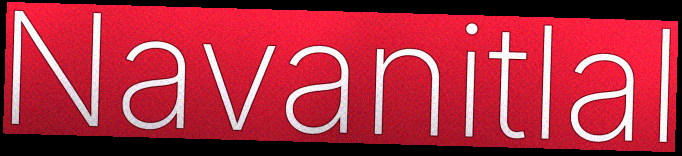
Navanitlal